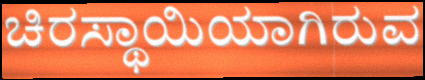
ಚಿರಸ್ಥಾಯಿಯಾಗಿರುವ